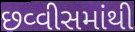
છવ્વીસમાંથી